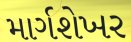
માર્ગશેખર